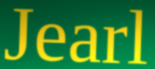
Jearl